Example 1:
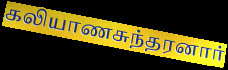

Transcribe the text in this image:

கலியாணசுந்தரனார்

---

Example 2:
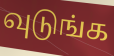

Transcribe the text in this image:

வுடுங்க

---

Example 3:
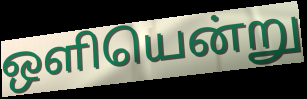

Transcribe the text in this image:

ஒளியென்று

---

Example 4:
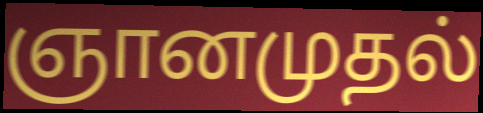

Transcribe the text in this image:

ஞானமுதல்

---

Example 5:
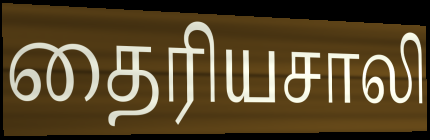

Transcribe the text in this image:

தைரியசாலி